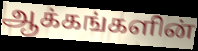
ஆக்கங்களின்